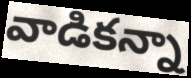
వాడికన్నా